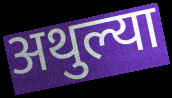
अथुल्या